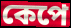
কেপে